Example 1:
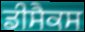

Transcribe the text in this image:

ਡੀਸੈਕਸ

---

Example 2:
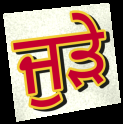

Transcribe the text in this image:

ਜੁੜੇ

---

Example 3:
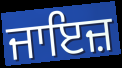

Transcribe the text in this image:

ਜਾਇਜ਼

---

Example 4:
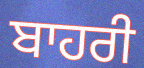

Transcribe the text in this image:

ਬਾਹਰੀ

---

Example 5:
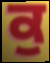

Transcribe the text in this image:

ਕੁ